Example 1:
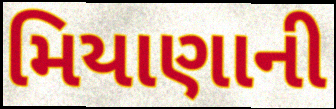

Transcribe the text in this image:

મિયાણાની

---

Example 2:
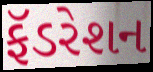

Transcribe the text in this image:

ફૅડરેશન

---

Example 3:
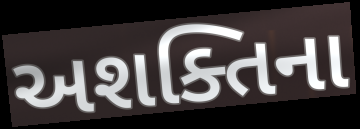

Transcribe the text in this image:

અશક્તિના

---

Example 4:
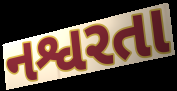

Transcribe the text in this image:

નશ્વરતા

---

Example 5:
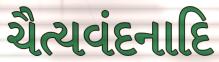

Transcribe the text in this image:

ચૈત્યવંદનાદિ